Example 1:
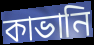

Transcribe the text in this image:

কাভানি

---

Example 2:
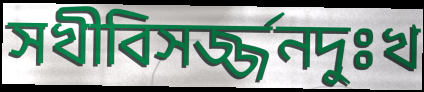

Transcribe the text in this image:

সখীবিসর্জ্জনদুঃখ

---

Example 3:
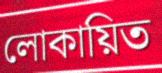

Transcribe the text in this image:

লোকায়িত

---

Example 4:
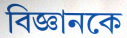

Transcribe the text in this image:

বিজ্ঞানকে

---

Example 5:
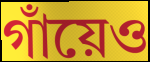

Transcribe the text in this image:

গাঁয়েও